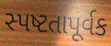
સ્પષ્ટતાપૂર્વક